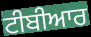
ਟੀਬੀਆਰ